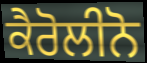
ਕੈਰੋਲੀਨੋ